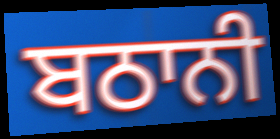
ਬਠਾਨੀ